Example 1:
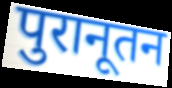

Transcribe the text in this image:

पुरानूतन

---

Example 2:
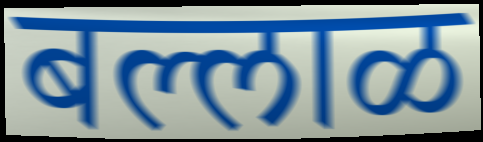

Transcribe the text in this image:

बल्लाळ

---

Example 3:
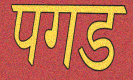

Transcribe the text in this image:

पगड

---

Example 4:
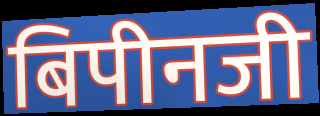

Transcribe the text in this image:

बिपीनजी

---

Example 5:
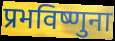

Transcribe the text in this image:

प्रभविष्णुना